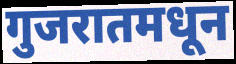
गुजरातमधून